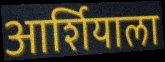
आर्शियाला